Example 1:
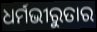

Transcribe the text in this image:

ଧର୍ମଭୀରୁତାର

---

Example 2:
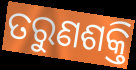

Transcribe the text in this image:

ତରୁଣଶକ୍ତି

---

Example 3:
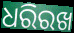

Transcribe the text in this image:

ଧରିରଖ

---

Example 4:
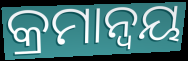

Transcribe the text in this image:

କ୍ରମାନ୍ୱୟ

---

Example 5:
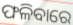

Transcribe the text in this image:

ଫଳିବାରେ